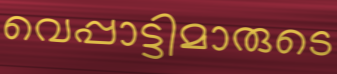
വെപ്പാട്ടിമാരുടെ